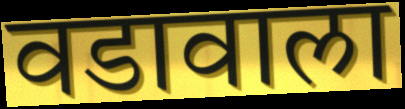
वडावाला